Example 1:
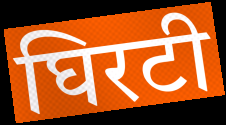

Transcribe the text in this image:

घिरटी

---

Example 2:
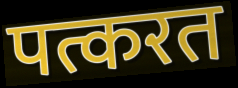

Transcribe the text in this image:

पत्करत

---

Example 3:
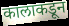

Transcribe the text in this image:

कालाकडून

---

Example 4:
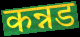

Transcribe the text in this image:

कन्नड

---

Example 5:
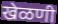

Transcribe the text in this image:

खेळणी